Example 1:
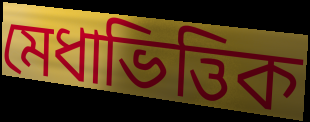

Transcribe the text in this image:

মেধাভিত্তিক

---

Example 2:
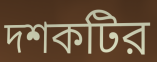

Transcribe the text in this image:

দশকটির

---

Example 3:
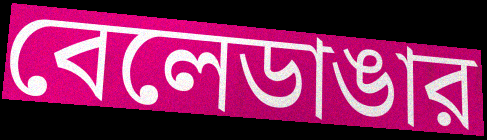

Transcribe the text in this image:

বেলেডাঙার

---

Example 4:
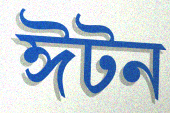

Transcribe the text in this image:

ঈটন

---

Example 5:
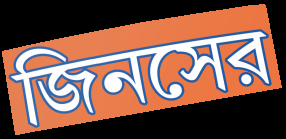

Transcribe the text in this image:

জিনসের